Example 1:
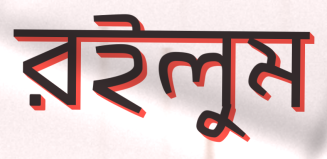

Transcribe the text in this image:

রইলুম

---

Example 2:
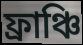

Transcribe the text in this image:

ফ্রাঞ্চি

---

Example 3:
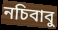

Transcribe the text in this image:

নচিবাবু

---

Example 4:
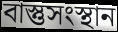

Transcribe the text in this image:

বাস্তুসংস্থান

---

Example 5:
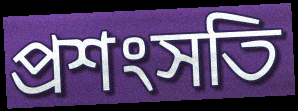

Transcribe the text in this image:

প্রশংসতি